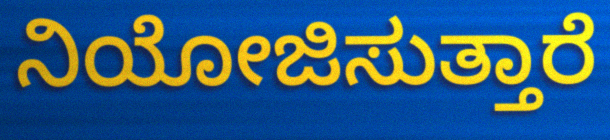
ನಿಯೋಜಿಸುತ್ತಾರೆ